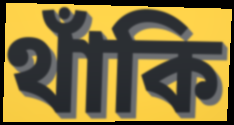
থাঁকি